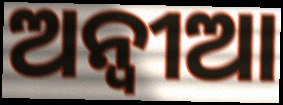
ଅନ୍ବୀଆ